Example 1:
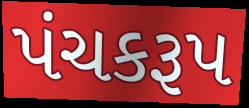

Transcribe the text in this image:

પંચકરૂપ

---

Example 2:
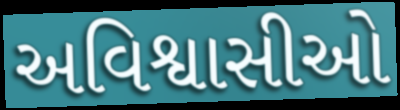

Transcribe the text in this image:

અવિશ્વાસીઓ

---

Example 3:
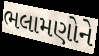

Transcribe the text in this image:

ભલામણોને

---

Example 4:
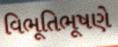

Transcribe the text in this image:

વિભૂતિભૂષણે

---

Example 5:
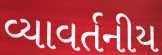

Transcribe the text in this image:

વ્યાવર્તનીય